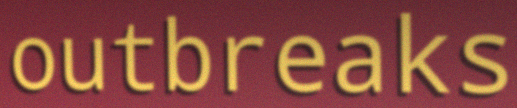
outbreaks